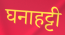
घनाहट्टी